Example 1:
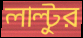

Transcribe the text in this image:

লাল্টুর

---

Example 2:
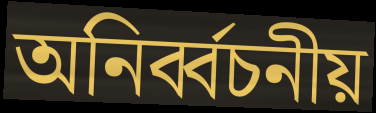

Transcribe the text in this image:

অনির্ব্বচনীয়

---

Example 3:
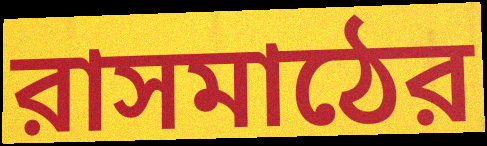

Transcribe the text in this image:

রাসমাঠের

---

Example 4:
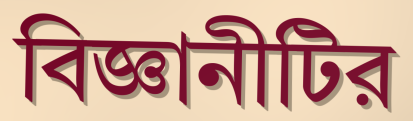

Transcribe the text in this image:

বিজ্ঞানীটির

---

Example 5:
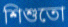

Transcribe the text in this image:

শিশুতো